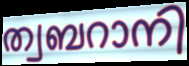
ത്വബറാനി